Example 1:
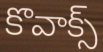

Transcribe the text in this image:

కొవాక్స్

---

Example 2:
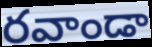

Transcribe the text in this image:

రవాండా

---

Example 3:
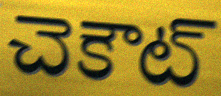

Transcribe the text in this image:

చెకౌట్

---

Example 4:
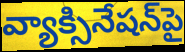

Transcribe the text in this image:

వ్యాక్సినేషన్‌పై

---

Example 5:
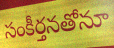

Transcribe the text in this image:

సంకీర్తనతోనూ